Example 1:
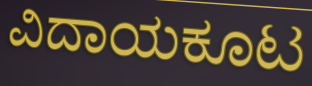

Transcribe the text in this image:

ವಿದಾಯಕೂಟ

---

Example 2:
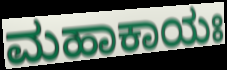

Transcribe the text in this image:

ಮಹಾಕಾಯಃ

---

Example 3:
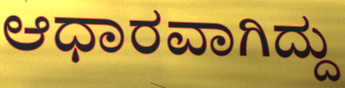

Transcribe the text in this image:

ಆಧಾರವಾಗಿದ್ದು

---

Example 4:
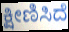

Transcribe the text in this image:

ಕ್ಷೀಣಿಸಿದೆ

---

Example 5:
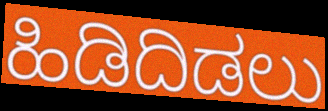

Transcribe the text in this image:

ಹಿಡಿದಿಡಲು